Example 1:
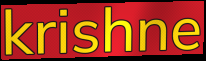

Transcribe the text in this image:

krishne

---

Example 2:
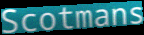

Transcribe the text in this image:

Scotmans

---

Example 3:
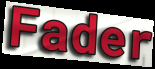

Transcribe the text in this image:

Fader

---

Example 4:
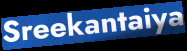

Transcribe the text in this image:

Sreekantaiya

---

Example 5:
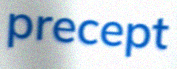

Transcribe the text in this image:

precept